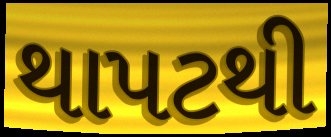
થાપટથી